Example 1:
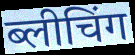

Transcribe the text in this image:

ब्‍लीचिंग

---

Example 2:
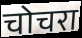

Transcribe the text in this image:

चोचरा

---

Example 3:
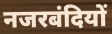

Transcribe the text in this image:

नजरबंदियों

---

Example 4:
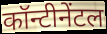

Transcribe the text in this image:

कॉन्टीनेंटल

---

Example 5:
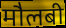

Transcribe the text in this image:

मौलबी